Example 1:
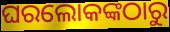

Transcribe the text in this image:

ଘରଲୋକଙ୍କଠାରୁ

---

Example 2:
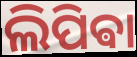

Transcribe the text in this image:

ଲିପିଵା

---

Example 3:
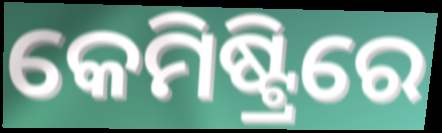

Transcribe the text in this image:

କେମିଷ୍ଟ୍ରିରେ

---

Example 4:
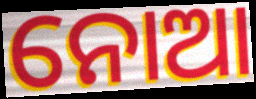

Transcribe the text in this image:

ନୋଆ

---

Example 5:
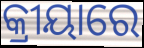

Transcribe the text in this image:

କ୍ରୀୟାରେ